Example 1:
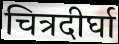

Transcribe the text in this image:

चित्रदीर्घा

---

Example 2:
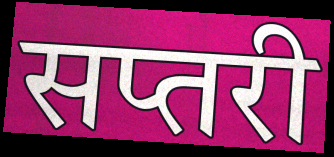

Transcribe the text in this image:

सप्तरी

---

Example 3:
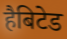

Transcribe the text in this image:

हैबिटेड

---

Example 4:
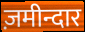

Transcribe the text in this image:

ज़मीन्दार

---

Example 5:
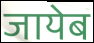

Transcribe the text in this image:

जायेब